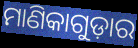
ମାଣିକାଗୁଡ଼ାର